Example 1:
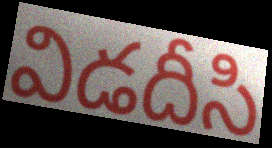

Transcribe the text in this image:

విడదీసి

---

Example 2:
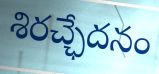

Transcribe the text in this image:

శిరచ్ఛేదనం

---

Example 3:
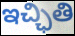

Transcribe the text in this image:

ఇచ్ఛితి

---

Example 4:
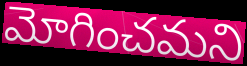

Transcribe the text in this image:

మోగించమని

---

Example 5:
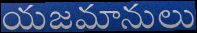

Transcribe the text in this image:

యజమానులు